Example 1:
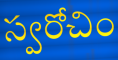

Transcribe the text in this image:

స్వరోచిం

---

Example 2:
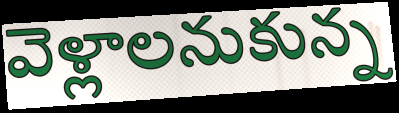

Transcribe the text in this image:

వెళ్లాలనుకున్న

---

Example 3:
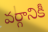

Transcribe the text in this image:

వర్గానికీ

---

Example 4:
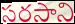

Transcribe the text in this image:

సరసాని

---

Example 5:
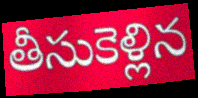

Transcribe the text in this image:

తీసుకెళ్లిన